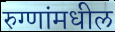
रुग्णांमधील